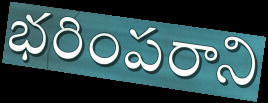
భరింపరాని